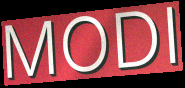
MODI